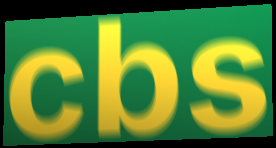
cbs